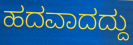
ಹದವಾದದ್ದು